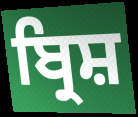
ਬ੍ਰਿਸ਼